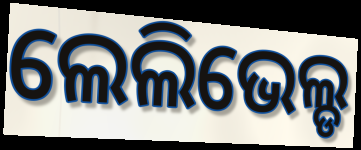
ଲେଲିଭେଲ୍ଡ